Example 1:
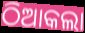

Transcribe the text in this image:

ଠିଆକଲା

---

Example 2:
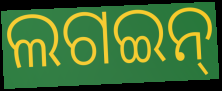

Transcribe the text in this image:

ଲଗଇନ୍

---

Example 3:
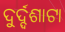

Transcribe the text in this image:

ଦୁର୍ଦ୍ଦଶାଟା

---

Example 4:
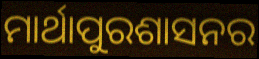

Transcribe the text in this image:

ମାର୍ଥାପୁରଶାସନର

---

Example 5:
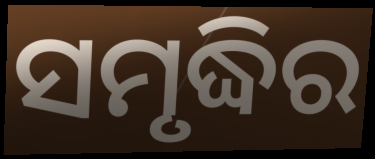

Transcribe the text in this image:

ସମୃଦ୍ଧିର